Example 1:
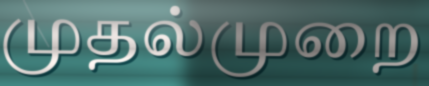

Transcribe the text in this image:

முதல்முறை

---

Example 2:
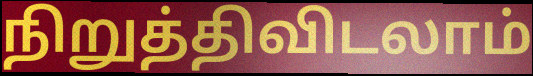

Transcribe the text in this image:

நிறுத்திவிடலாம்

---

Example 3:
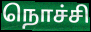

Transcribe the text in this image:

நொச்சி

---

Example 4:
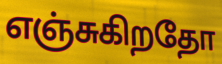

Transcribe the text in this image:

எஞ்சுகிறதோ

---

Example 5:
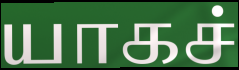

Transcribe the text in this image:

யாகச்